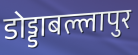
डोड्डाबल्लापुर